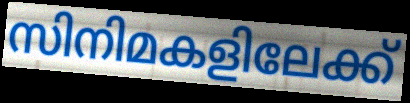
സിനിമകളിലേക്ക്